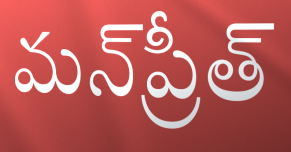
మన్‌ప్రీత్